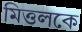
মিত্তলকে